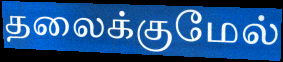
தலைக்குமேல்